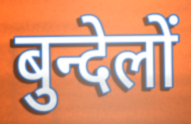
बुन्देलों